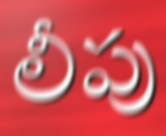
లీపు